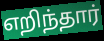
எறிந்தார்